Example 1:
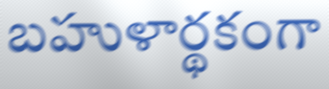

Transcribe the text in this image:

బహుళార్థకంగా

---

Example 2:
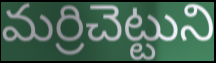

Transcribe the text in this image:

మర్రిచెట్టుని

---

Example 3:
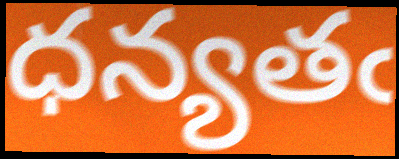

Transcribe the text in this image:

ధన్యతఁ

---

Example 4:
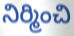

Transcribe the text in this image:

నిర్మించి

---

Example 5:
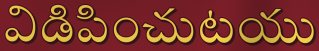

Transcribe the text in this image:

విడిపించుటయు